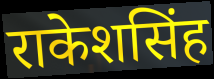
राकेशसिंह